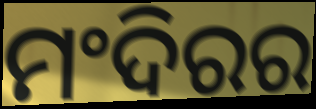
ମଂଦିରର